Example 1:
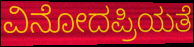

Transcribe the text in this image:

ವಿನೋದಪ್ರಿಯತೆ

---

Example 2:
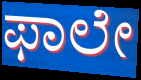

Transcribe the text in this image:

ಫಾಲೇ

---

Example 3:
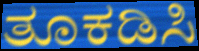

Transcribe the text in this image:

ತೂಕಡಿಸಿ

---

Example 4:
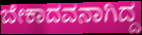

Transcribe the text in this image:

ಬೇಕಾದವನಾಗಿದ್ದ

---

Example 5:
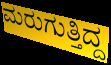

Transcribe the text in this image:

ಮರುಗುತ್ತಿದ್ದ